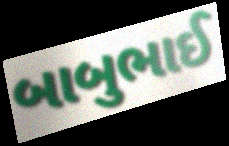
બાબુભાઈ